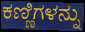
ಕಣ್ಣಿಗಳನ್ನು